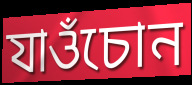
যাওঁচোন